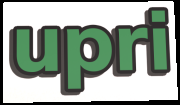
upri